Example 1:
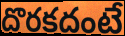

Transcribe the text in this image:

దొరకదంటే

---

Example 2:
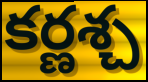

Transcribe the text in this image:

కర్ణశ్చ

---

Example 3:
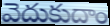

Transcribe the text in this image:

వెదుకుదాం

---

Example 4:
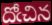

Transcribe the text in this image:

దోఁచిన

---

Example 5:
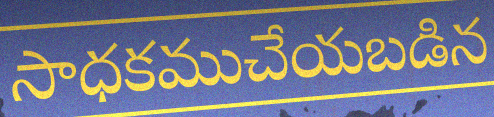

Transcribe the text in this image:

సాధకముచేయబడిన